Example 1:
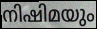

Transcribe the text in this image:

നിഷിമയും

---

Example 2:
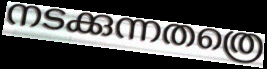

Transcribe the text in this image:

നടക്കുന്നതത്രെ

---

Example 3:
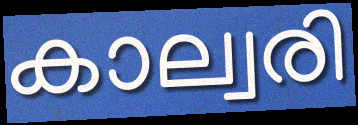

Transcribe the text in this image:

കാല്വരി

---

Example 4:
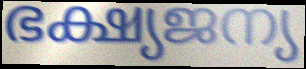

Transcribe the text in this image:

ഭക്ഷ്യജന്യ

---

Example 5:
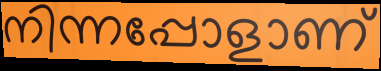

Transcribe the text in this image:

നിന്നപ്പോളാണ്